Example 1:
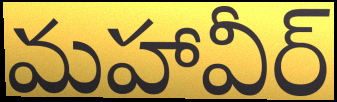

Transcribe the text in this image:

మహావీర్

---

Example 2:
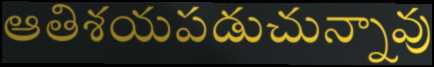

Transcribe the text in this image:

ఆతిశయపడుచున్నావు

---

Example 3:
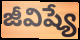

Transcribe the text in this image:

జీవిష్యే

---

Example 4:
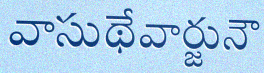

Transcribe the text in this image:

వాసుథేవార్జునౌ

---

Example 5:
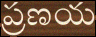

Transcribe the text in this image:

ప్రణయ